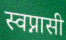
स्वप्नासी